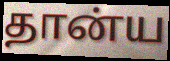
தான்ய